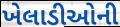
ખેલાડીઓની